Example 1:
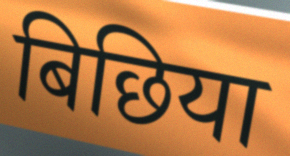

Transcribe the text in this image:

बिछिया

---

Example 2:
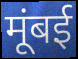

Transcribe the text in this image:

मूंबई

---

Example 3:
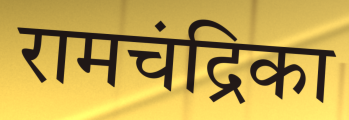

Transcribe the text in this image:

रामचंद्रिका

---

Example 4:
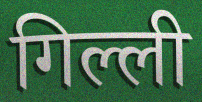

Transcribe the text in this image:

गिल्ली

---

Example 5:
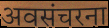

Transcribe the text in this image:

अवसंचरना